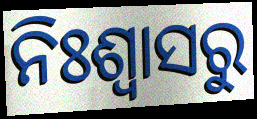
ନିଃଶ୍ଵାସରୁ